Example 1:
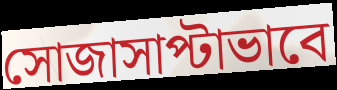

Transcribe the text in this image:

সোজাসাপ্টাভাবে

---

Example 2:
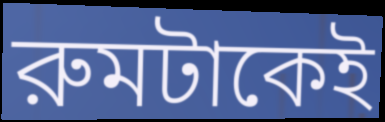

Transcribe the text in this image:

রুমটাকেই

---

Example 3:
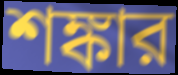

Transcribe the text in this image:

শঙ্কার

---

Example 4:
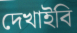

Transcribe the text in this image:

দেখাইবি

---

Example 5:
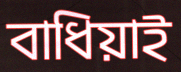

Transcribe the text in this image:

বাধিয়াই